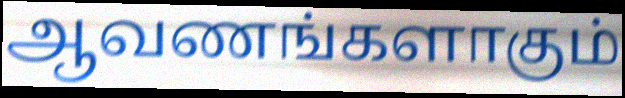
ஆவணங்களாகும்